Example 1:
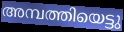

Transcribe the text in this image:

അമ്പത്തിയെട്ടു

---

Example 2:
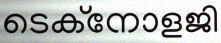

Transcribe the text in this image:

ടെക്നോളജി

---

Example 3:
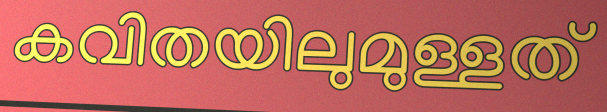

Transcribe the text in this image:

കവിതയിലുമുള്ളത്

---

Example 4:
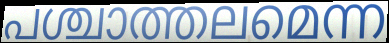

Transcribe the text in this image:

പശ്ചാത്തലമെന്ന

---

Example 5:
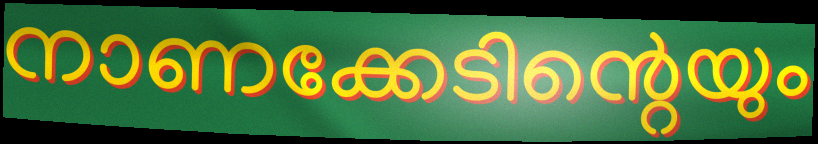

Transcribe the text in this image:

നാണക്കേടിന്റെയും